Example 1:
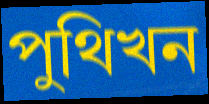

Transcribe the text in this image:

পুথিখন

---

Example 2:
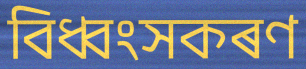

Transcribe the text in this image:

বিধ্বংসকৰণ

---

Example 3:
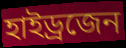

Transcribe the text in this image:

হাইড্ৰজেন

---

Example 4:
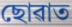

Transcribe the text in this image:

ছোৱাত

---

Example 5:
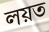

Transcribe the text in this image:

লয়ত